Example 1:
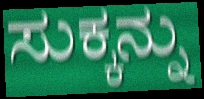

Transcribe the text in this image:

ಸುಕ್ಕನ್ನು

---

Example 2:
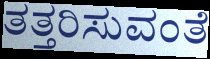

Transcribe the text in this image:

ತತ್ತರಿಸುವಂತೆ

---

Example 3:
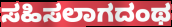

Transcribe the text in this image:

ಸಹಿಸಲಾಗದಂಥ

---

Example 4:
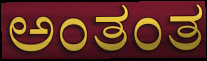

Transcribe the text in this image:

ಅಂತಂತ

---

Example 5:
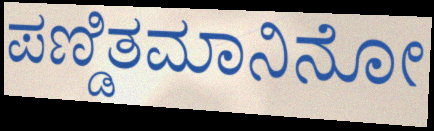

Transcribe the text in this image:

ಪಣ್ಡಿತಮಾನಿನೋ